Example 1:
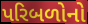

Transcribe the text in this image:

પરિબળોનો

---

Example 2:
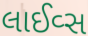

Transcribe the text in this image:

લાઈવ્સ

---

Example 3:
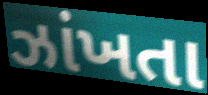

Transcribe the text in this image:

ઝાંખતા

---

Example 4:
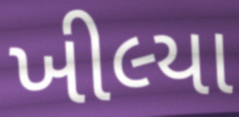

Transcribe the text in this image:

ખીલ્યા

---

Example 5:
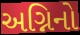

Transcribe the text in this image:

અગ્નિનો